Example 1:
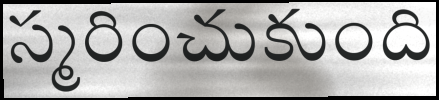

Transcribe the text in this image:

స్మరించుకుంది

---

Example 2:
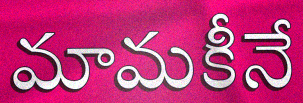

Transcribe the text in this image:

మామకీనే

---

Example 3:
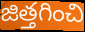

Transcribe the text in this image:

జిత్తగించి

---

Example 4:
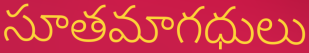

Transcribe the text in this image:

సూతమాగధులు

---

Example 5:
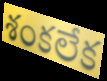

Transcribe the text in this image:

శంకలేక